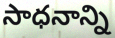
సాధనాన్ని